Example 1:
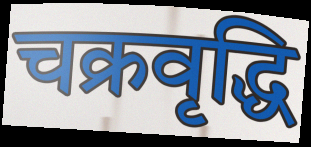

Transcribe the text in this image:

चक्रवृद्धि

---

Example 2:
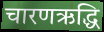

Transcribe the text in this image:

चारणऋद्धि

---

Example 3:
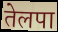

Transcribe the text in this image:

तेलपा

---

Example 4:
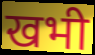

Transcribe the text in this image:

खभी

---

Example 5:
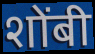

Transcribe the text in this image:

शोंबी